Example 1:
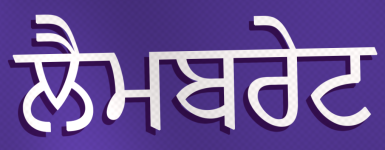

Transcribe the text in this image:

ਲੈਮਬਰੇਟ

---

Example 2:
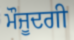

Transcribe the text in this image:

ਮੌਜੂਦਗੀ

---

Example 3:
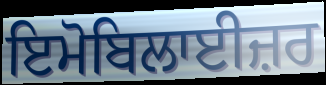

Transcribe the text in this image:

ਇਮੋਬਿਲਾਈਜ਼ਰ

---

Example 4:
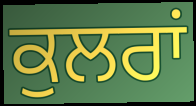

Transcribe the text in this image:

ਕੁਲਰਾਂ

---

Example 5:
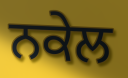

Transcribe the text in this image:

ਨਕੇਲ